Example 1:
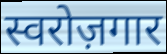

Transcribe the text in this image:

स्वरोज़गार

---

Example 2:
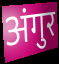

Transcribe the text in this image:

अंगुर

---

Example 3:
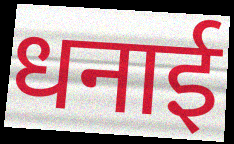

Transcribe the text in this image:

धनाई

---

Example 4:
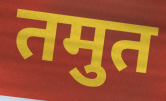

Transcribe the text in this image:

तमुत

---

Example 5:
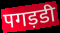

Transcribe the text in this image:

पगड़डी